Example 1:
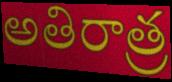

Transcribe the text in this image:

అతిరాత్ర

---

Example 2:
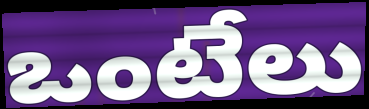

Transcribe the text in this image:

ఒంటేలు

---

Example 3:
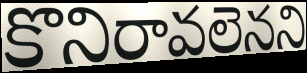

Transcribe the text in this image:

కొనిరావలెనని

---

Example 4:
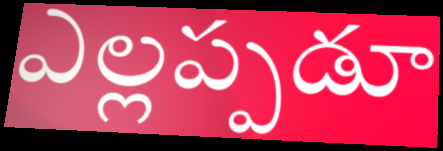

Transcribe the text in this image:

ఎల్లప్పడూ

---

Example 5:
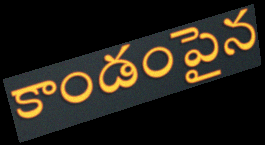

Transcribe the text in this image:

కాండంపైన